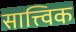
सात्त्विक